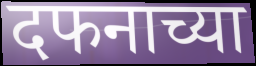
दफनाच्या